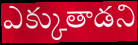
ఎక్కుతాడని